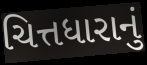
ચિત્તધારાનું